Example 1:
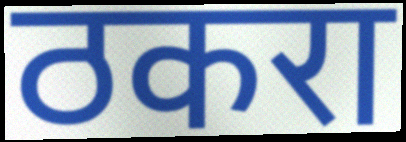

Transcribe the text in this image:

ठकरा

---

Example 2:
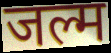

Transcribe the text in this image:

जल्म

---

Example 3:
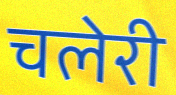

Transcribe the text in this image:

चलेरी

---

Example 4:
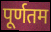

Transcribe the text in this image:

पूर्णतम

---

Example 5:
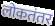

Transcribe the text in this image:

लोकतंतर